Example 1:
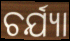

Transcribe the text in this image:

ଚର୍ଯ୍ଯା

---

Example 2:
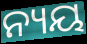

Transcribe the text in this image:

ନ୍ୟୟ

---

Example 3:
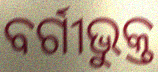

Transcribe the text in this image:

ବର୍ଗୀଭୁକ୍ତ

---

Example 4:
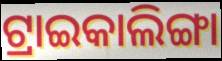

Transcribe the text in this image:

ଟ୍ରାଇକାଲିଙ୍ଗା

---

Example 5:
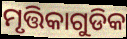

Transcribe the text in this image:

ମୃତ୍ତିକାଗୁଡିକ